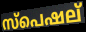
സ്പെഷല്